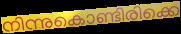
നിന്നുകൊണ്ടിരിക്കെ